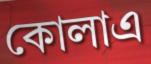
কোলাএ